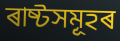
ৰাষ্টসমূহৰ